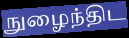
நுழைந்திட